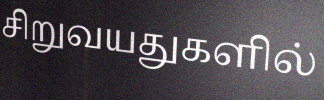
சிறுவயதுகளில்